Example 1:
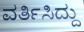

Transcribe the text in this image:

ವರ್ತಿಸಿದ್ದು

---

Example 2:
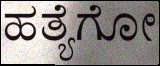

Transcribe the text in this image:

ಹತ್ಯೆಗೋ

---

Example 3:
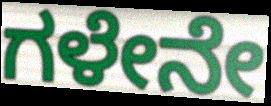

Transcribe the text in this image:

ಗಳೇನೇ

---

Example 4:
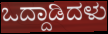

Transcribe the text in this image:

ಒದ್ದಾಡಿದಳು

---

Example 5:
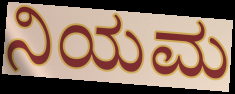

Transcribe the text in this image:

ನಿಯಮ